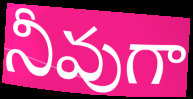
నీవుగా